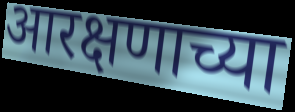
आरक्षणाच्या